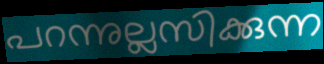
പറന്നുല്ലസിക്കുന്ന